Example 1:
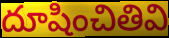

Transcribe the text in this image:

దూషించితివి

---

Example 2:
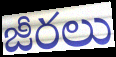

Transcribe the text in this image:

జీరలు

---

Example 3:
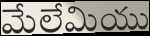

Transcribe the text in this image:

మేలేమియు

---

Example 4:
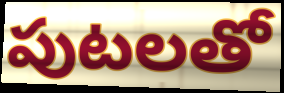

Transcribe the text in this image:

పుటలతో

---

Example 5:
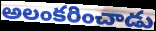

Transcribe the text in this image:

అలంకరించాడు